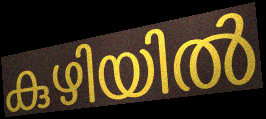
കുഴിയിൽ